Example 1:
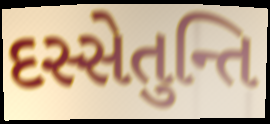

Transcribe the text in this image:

દસ્સેતુન્તિ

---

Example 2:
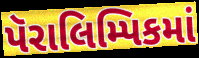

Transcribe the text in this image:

પૅરાલિમ્પિકમાં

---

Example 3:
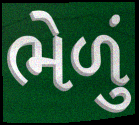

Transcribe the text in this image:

ભેળું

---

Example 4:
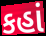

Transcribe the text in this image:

કહાં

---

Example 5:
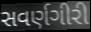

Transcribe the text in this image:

સવર્ણગીરી